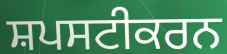
ਸ਼ਪਸਟੀਕਰਨ